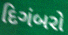
દિગંબરો